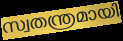
സ്വതന്ത്രമായി